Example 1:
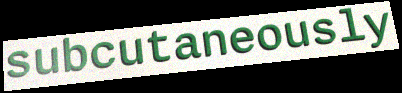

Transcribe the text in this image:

subcutaneously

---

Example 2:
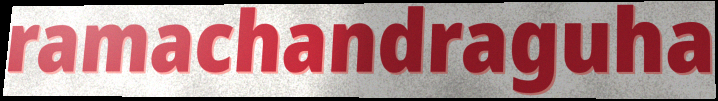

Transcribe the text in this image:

ramachandraguha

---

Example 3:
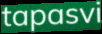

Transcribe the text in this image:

tapasvi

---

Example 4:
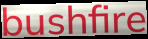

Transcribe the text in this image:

bushfire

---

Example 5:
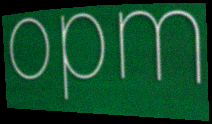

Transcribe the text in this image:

opm